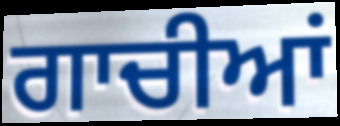
ਗਾਚੀਆਂ